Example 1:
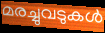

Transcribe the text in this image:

മരച്ചുവടുകൾ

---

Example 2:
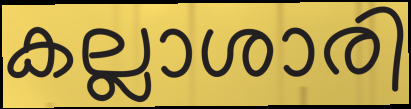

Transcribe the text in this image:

കല്ലാശാരി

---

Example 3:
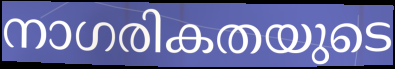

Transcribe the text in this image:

നാഗരികതയുടെ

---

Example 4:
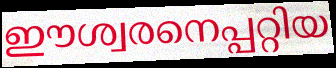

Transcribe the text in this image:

ഈശ്വരനെപ്പറ്റിയ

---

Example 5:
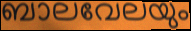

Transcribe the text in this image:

ബാലവേലയും